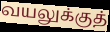
வயலுக்குத்